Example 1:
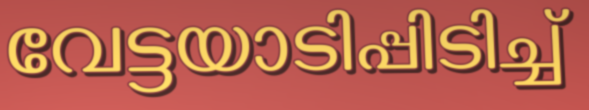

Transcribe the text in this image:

വേട്ടയാടിപ്പിടിച്ച്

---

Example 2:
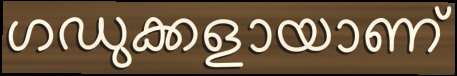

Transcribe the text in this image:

ഗഡുക്കളായാണ്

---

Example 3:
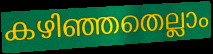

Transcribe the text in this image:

കഴിഞ്ഞതെല്ലാം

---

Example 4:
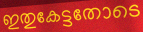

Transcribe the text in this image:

ഇതുകേട്ടതോടെ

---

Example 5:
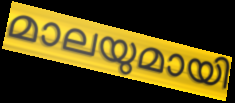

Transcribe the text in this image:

മാലയുമായി